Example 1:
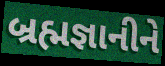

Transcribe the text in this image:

બ્રહ્મજ્ઞાનીને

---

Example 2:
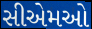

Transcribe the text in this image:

સીએમઓ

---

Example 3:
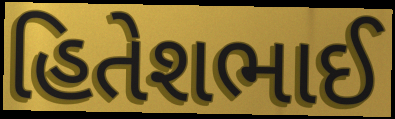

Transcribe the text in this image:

હિતેશભાઈ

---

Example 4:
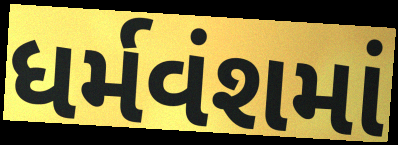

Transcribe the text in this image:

ધર્મવંશમાં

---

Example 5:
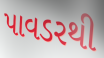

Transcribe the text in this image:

પાવડરથી